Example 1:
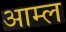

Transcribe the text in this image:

आम्‍ल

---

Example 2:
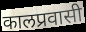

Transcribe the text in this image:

कालप्रवासी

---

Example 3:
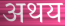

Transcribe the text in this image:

अथय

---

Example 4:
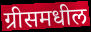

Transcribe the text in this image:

ग्रीसमधील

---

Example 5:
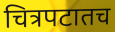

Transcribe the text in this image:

चित्रपटातच